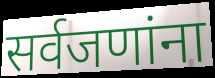
सर्वजणांना